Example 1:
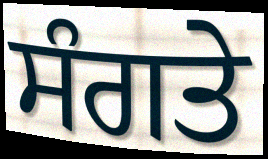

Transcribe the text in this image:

ਸੰਗਤੇ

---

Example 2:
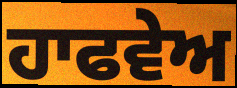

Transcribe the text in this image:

ਹਾਫਵੇਅ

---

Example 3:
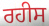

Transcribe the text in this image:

ਰਹੀਸ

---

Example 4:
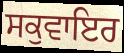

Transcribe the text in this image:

ਸਕੁਵਾਇਰ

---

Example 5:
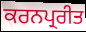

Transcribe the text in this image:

ਕਰਨਪ੍ਰਰੀਤ